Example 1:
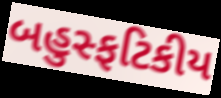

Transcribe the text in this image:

બહુસ્ફટિકીય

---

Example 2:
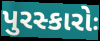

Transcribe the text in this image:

પુરસ્કારોઃ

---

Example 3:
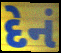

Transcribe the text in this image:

દેનં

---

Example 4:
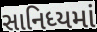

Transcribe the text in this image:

સાનિધ્યમાં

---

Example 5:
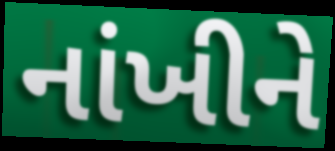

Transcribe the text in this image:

નાંખીને